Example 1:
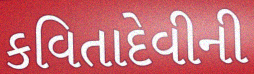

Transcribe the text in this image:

કવિતાદેવીની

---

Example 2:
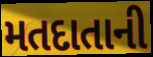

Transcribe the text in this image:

મતદાતાની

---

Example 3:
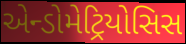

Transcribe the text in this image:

એન્ડોમેટ્રિયોસિસ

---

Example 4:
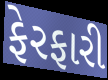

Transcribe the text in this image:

ફેરફારી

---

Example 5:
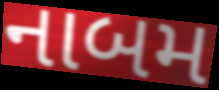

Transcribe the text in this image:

નાબમ